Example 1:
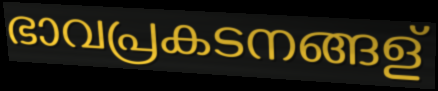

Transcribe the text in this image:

ഭാവപ്രകടനങ്ങള്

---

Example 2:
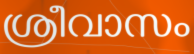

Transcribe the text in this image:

ശ്രീവാസം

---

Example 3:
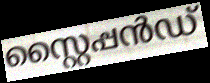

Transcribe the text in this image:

സ്റ്റൈപ്പൻഡ്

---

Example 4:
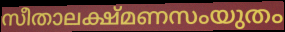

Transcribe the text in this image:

സീതാലക്ഷ്മണസംയുതം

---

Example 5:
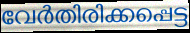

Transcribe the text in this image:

വേർതിരിക്കപ്പെട്ട